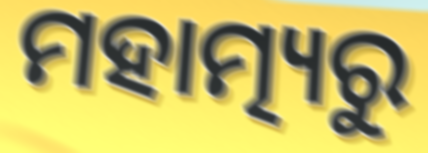
ମହାତ୍ମ୍ୟରୁ